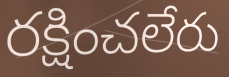
రక్షించలేరు